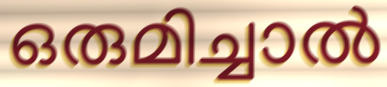
ഒരുമിച്ചാൽ